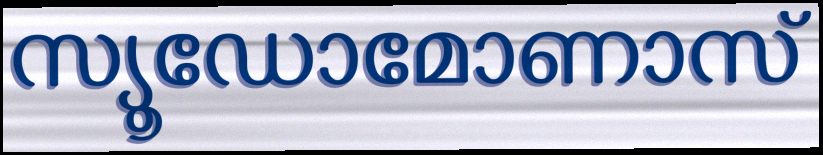
സ്യൂഡോമോണാസ്